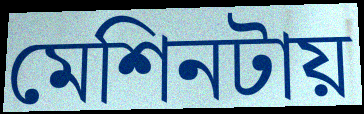
মেশিনটায়